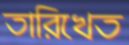
তারিখেত